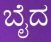
ಬೈದ